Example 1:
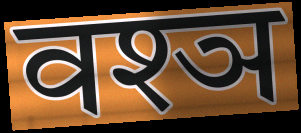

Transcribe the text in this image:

वश्ञ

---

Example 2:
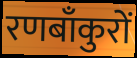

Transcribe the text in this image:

रणबाँकुरों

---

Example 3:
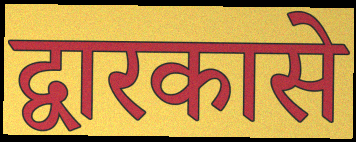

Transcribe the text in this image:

द्वारकासे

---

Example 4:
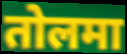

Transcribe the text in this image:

तोलमा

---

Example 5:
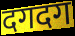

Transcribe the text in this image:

दगदग